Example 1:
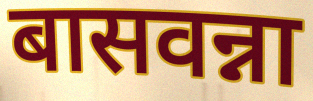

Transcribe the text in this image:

बासवन्ना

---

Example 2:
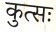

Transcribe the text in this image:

कुत्सः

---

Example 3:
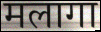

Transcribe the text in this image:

मलागा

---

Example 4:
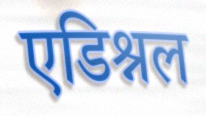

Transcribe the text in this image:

एडिश्नल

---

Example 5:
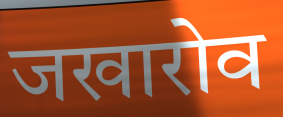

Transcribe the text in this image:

जखारोव